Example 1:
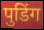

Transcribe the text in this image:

पुडिंग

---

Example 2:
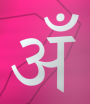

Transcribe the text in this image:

अँ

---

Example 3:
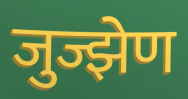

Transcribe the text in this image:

जुज्झेण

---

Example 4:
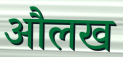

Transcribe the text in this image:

औलख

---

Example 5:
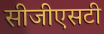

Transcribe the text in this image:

सीजीएसटी